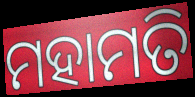
ମହାମତି